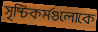
সৃষ্টিকর্মগুলোকে